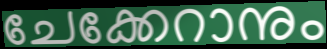
ചേക്കേറാനും